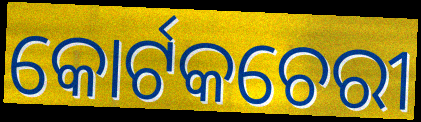
କୋର୍ଟକଚେରୀ